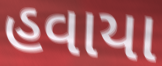
હવાયા